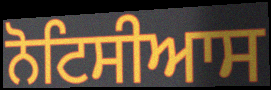
ਨੋਟਿਸੀਆਸ